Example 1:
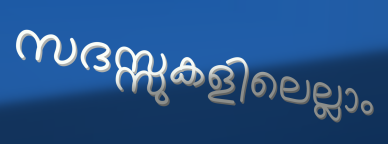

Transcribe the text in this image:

സദസ്സുകളിലെല്ലാം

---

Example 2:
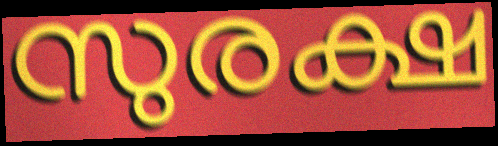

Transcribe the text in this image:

സുരക്ഷ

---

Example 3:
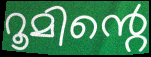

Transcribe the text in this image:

റൂമിന്റെ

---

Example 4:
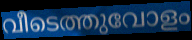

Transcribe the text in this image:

വീടെത്തുവോളം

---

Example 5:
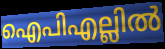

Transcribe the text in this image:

ഐപിഎല്ലിൽ